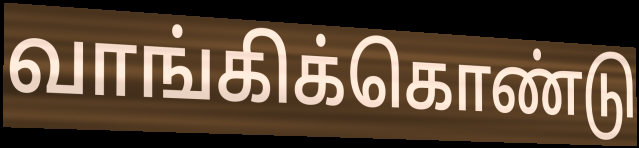
வாங்கிக்கொண்டு